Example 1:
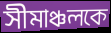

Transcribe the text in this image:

সীমাঞ্চলকে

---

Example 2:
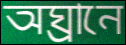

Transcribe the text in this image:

অঘ্রানে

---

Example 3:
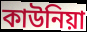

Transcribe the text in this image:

কাউনিয়া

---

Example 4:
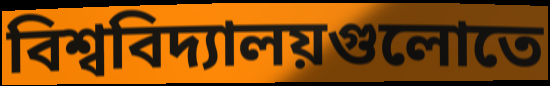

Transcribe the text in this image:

বিশ্ববিদ্যালয়গুলোতে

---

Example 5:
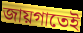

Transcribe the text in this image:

জায়গাতেই